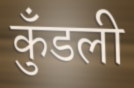
कुँडली